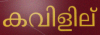
കവിളില്